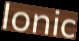
Ionic